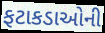
ફટાકડાઓની